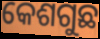
କେଶଗୁଛ